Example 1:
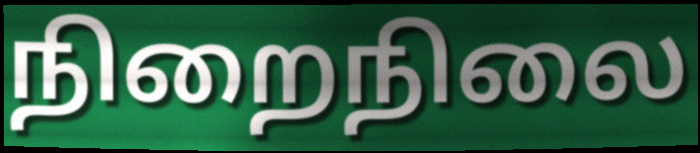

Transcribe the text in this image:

நிறைநிலை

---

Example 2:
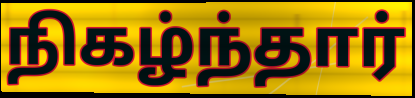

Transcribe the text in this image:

நிகழ்ந்தார்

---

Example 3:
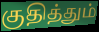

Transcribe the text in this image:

குதித்தும்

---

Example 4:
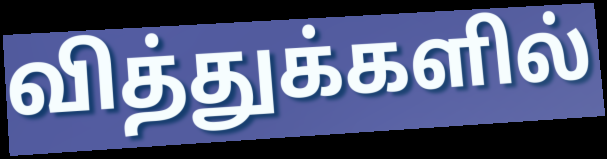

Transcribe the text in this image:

வித்துக்களில்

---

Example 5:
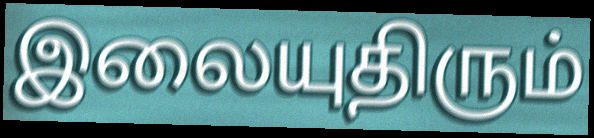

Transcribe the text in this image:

இலையுதிரும்